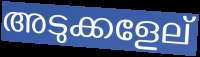
അടുക്കളേല്